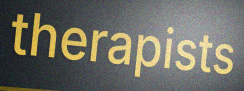
therapists